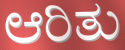
ಆರಿತು